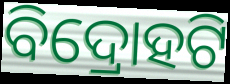
ବିଦ୍ରୋହଟି